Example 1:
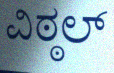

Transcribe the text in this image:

ವಿಠ್ಠಲ್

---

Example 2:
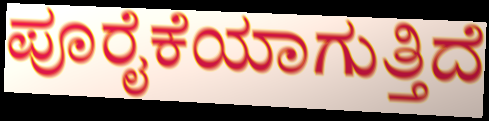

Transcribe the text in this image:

ಪೂರೈಕೆಯಾಗುತ್ತಿದೆ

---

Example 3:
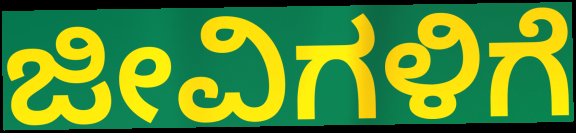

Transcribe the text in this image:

ಜೀವಿಗಳಿಗೆ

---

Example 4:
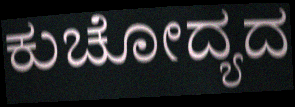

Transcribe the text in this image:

ಕುಚೋದ್ಯದ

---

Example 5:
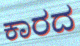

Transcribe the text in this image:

ಕಾರದ